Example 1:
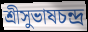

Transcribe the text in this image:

শ্রীসুভাষচন্দ্র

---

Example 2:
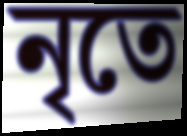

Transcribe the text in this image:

নৃতে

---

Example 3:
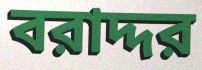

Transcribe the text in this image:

বরাদ্দর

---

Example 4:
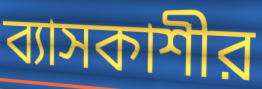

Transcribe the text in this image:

ব্যাসকাশীর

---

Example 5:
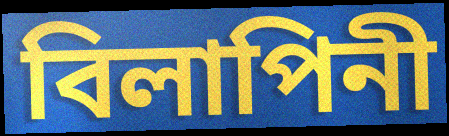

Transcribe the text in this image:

বিলাপিনী